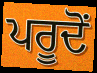
ਪਰੂਦੋਂ